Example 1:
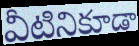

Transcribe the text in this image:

వీటినికూడా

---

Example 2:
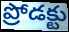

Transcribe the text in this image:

ప్రోడక్టు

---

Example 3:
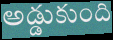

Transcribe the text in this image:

అడ్డుకుంది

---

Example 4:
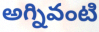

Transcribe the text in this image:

అగ్నివంటి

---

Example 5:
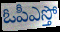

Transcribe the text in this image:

ఓపీఎస్తో